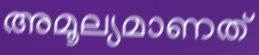
അമൂല്യമാണത്